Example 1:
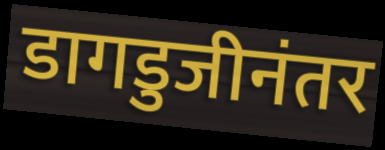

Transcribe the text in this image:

डागडुजीनंतर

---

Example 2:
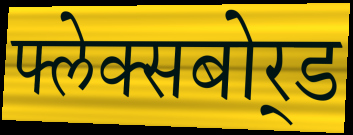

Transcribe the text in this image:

फ्लेक्सबोर्ड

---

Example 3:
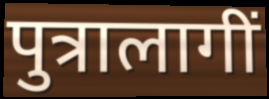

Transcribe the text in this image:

पुत्रालागीं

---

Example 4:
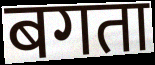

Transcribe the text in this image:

बगता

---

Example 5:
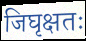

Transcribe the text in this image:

जिघृक्षतः